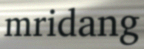
mridang